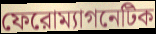
ফেরোম্যাগনেটিক